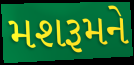
મશરૂમને